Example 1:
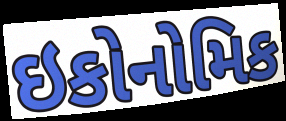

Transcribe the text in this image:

ઇકોનોમિક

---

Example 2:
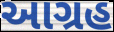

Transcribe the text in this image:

આગ્રહ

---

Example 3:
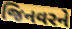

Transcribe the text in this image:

જિનવરને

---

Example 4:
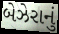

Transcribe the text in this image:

બેઝેરાનું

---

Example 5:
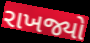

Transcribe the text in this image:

રાખજ્યો